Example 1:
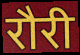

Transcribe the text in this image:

रौरी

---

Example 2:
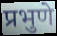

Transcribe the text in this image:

प्रभुणे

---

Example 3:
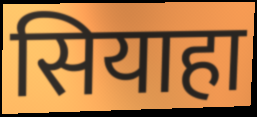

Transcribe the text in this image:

सियाहा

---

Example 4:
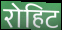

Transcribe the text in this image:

रोहिट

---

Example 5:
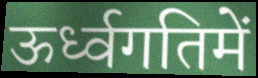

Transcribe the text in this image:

ऊर्ध्वगतिमें